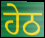
ਹੇਠ